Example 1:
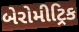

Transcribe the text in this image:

બેરોમીટ્રિક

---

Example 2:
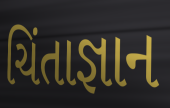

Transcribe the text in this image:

ચિંતાજ્ઞાન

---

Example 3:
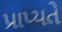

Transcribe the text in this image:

પ્રાપ્યતે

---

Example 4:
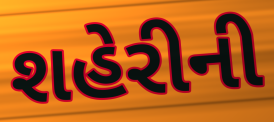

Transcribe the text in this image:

શહેરીની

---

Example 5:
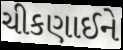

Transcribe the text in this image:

ચીકણાઈને